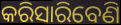
କରିସାରିବେଣି